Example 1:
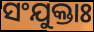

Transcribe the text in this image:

ସଂଯୁକ୍ତାଃ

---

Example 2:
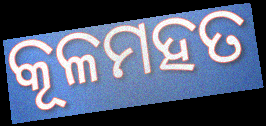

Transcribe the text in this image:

କୂଳମହତ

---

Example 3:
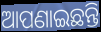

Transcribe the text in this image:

ଆପଣାଇଛନ୍ତି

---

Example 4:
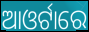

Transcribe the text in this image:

ଆଓର୍ଟାରେ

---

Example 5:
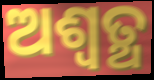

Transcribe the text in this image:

ଅଶ୍ବତ୍ଥ